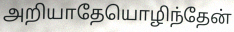
அறியாதேயொழிந்தேன்